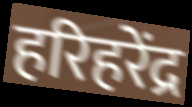
हरिहरेंद्र